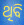
ଥିବି